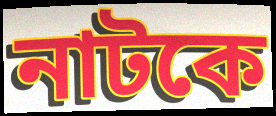
নাটকে